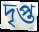
দৃপ্ত